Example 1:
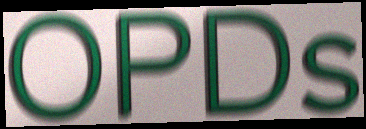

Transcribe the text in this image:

OPDs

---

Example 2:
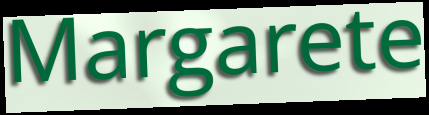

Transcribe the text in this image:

Margarete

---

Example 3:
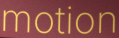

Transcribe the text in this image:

motion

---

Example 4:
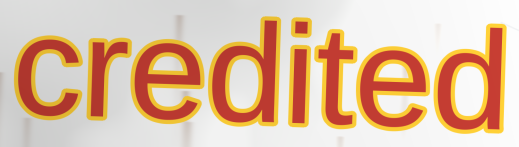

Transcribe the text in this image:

credited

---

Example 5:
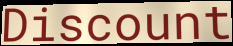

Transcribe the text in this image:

Discount